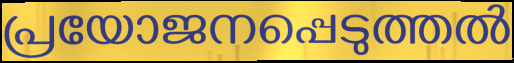
പ്രയോജനപ്പെടുത്തൽ